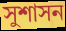
সুশাসন